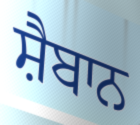
ਸ਼ੈਬਾਨ